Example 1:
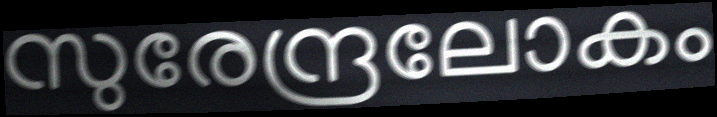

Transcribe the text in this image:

സുരേന്ദ്രലോകം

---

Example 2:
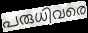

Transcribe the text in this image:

പരുധിവരെ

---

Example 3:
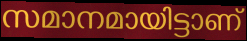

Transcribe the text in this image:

സമാനമായിട്ടാണ്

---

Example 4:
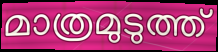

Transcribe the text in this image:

മാത്രമുടുത്ത്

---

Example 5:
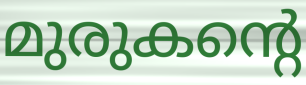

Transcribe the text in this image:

മുരുകന്റെ